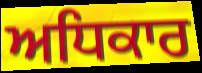
ਅਧਿਕਾਰ